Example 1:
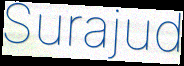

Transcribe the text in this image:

Surajud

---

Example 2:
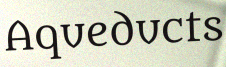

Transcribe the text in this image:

Aqueducts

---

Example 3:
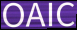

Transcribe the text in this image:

OAIC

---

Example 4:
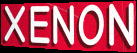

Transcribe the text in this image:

XENON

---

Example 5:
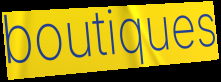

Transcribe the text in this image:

boutiques